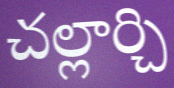
చల్లార్చి